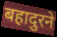
बहादुरने